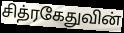
சித்ரகேதுவின்